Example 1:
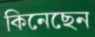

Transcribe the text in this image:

কিনেছেন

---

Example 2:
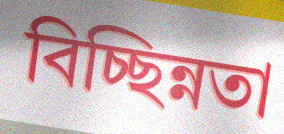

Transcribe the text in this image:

বিচ্ছিন্নতা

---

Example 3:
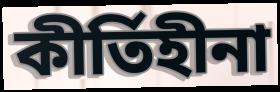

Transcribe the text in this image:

কীর্তিহীনা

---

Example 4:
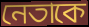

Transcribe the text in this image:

নেতাকে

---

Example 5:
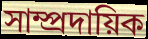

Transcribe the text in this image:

সাম্প্রদায়িক